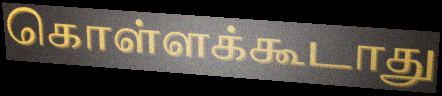
கொள்ளக்கூடாது